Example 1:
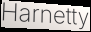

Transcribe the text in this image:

Harnetty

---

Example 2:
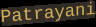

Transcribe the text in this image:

Patrayani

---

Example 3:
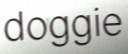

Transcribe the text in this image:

doggie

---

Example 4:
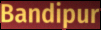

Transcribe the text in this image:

Bandipur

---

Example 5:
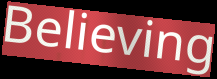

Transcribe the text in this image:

Believing